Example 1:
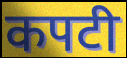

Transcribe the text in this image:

कपटी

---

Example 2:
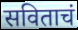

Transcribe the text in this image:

सविताचं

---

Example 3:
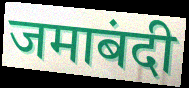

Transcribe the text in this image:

जमाबंदी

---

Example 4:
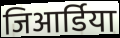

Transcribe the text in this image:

जिआर्डिया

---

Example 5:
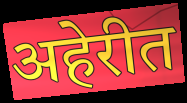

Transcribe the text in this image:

अहेरीत